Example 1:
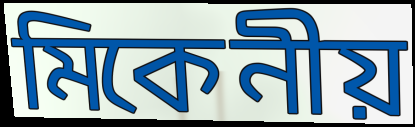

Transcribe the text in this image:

মিকেনীয়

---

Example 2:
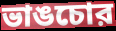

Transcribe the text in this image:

ভাঙচোর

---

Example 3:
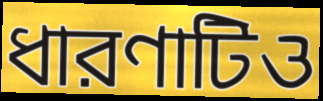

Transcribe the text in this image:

ধারণাটিও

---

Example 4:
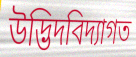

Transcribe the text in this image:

উদ্ভিদবিদ্যাগত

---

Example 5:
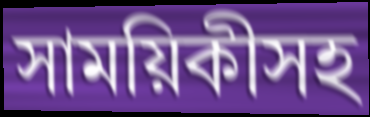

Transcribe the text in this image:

সাময়িকীসহ